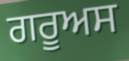
ਗਰੂਅਸ